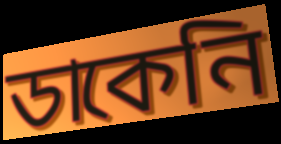
ডাকেনি